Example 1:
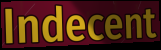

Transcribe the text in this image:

Indecent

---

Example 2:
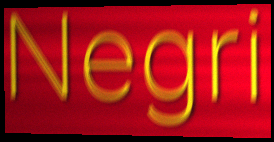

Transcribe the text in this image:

Negri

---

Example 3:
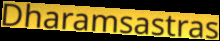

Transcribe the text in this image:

Dharamsastras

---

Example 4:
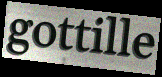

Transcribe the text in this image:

gottille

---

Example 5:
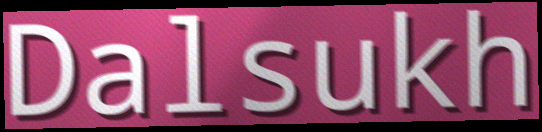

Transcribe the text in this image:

Dalsukh